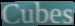
Cubes